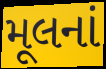
મૂલનાં